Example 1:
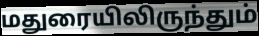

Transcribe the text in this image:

மதுரையிலிருந்தும்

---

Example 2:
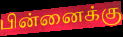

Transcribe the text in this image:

பின்னைக்கு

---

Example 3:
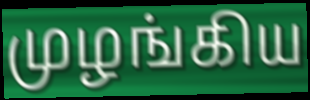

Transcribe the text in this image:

முழங்கிய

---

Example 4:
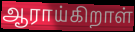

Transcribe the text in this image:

ஆராய்கிறாள்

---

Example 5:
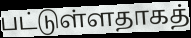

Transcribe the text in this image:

பட்டுள்ளதாகத்